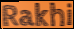
Rakhi